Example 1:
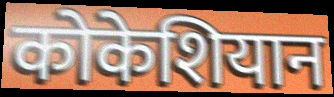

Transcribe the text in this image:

कोकेशियान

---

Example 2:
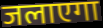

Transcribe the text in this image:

जलाएगा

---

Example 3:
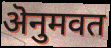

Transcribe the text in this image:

ऄनुमवत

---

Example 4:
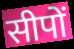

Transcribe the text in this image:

सीपों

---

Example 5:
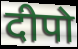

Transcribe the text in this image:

दीपो